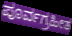
ಪೂರ್ವಗ್ರಹೀತ